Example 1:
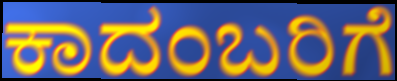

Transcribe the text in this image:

ಕಾದಂಬರಿಗೆ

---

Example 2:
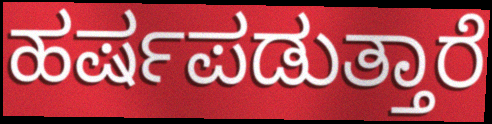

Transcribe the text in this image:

ಹರ್ಷಪಡುತ್ತಾರೆ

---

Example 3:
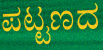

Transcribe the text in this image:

ಪಟ್ಟಣದ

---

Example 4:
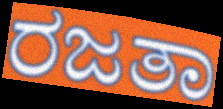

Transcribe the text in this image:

ರಜತಾ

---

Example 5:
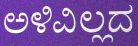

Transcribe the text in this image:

ಅಳಿವಿಲ್ಲದ